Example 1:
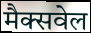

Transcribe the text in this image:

मैक्‍सवेल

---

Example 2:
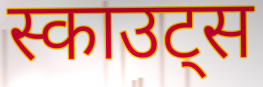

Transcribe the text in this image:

स्काउट्स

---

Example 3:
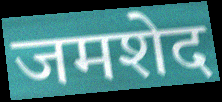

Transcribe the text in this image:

जमशेद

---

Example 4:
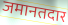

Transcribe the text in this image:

जमानतदार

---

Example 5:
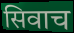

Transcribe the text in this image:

सिवाच